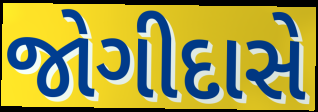
જોગીદાસે